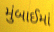
મુંબાઈમાં